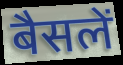
बैसलें